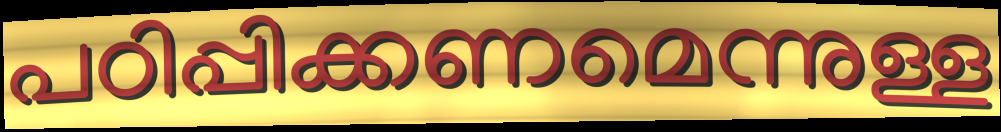
പഠിപ്പിക്കണമെന്നുള്ള